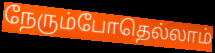
நேரும்போதெல்லாம்